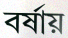
বর্ষায়